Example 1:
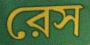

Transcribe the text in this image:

রেস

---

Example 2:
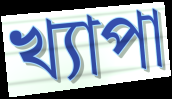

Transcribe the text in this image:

খ্যাপা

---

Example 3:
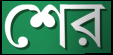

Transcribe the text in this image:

শের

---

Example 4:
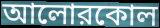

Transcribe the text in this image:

আলোরকোল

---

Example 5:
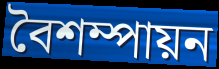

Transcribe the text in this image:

বৈশম্পায়ন